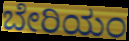
ಬೇರಿಯಂ